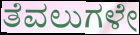
ತೆವಲುಗಳೇ